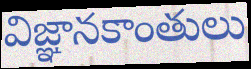
విజ్ఞానకాంతులు